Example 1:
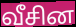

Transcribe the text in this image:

வீசின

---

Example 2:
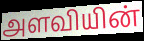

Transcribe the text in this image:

அளவியின்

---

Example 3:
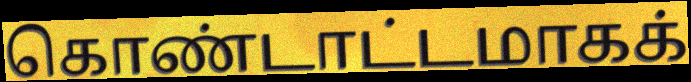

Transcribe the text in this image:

கொண்டாட்டமாகக்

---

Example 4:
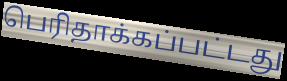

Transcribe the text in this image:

பெரிதாக்கப்பட்டது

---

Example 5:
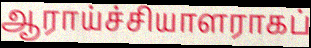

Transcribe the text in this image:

ஆராய்ச்சியாளராகப்